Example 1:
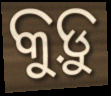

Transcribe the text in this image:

କୁଡ଼ୁ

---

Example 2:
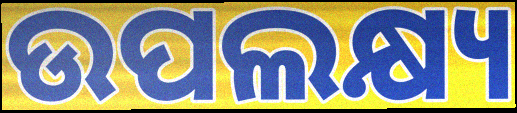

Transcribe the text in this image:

ଉପଲକ୍ଷ୍ୟ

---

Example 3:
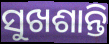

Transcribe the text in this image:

ସୁଖଶାନ୍ତି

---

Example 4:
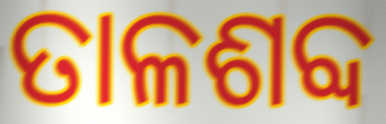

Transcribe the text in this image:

ତାଳଶବ୍ଦ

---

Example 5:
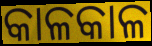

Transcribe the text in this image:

କାଳକାଳ